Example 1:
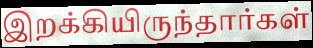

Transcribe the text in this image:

இறக்கியிருந்தார்கள்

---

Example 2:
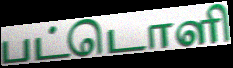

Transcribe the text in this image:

பட்டொளி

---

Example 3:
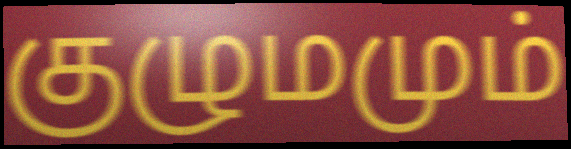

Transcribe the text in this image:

குழுமமும்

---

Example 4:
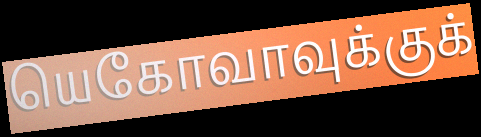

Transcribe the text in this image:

யெகோவாவுக்குக்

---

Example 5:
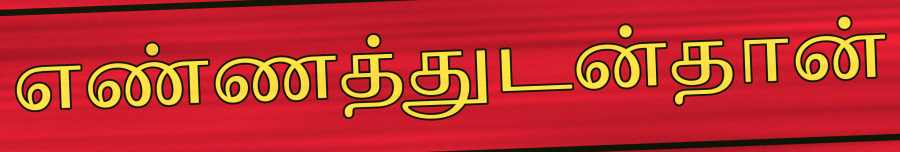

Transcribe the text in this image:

எண்ணத்துடன்தான்